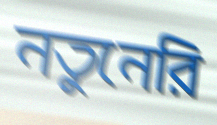
নতুনেরি